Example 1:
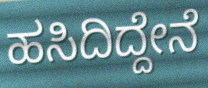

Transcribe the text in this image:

ಹಸಿದಿದ್ದೇನೆ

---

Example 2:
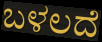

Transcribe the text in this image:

ಬಳಲದೆ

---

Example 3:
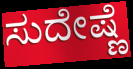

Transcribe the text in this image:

ಸುದೇಷ್ಣೆ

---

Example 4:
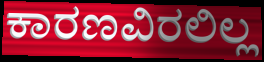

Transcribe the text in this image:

ಕಾರಣವಿರಲಿಲ್ಲ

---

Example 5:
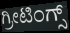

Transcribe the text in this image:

ಗ್ರೀಟಿಂಗ್ಸ್